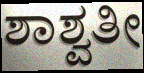
ಶಾಶ್ವತೀ